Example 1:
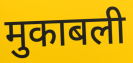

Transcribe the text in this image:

मुकाबली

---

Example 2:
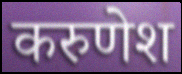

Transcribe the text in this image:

करुणेश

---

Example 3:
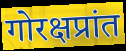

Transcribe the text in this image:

गोरक्षप्रांत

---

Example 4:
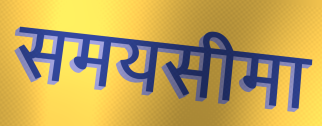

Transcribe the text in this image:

समयसीमा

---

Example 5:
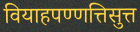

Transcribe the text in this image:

वियाहपण्णत्तिसुत्त